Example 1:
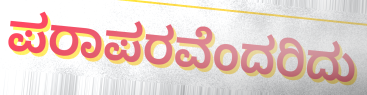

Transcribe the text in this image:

ಪರಾಪರವೆಂದರಿದು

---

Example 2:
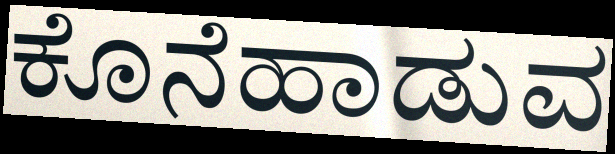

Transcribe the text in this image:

ಕೊನೆಹಾಡುವ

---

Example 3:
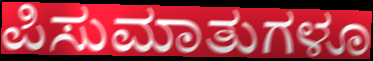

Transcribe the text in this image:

ಪಿಸುಮಾತುಗಳೂ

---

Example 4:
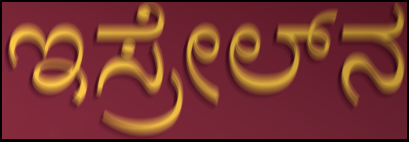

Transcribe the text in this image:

ಇಸ್ರೇಲ್‍ನ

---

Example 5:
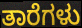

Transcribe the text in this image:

ತಾರೆಗಳು